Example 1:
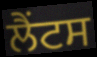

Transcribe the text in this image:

ਲੈਂਟਸ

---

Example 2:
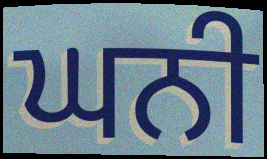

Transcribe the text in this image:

ਘਨੀ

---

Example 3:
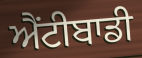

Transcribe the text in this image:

ਐਂਟੀਬਾਡੀ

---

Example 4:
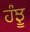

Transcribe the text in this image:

ਹੰਝੂ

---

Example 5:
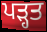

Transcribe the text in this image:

ਪਡ਼੍ਹਤ